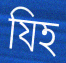
যিহ